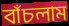
বাঁচলাম